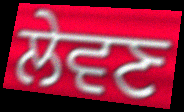
ਲੇਵਣ